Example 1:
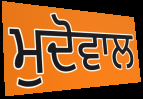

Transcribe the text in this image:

ਮੁਦੋਵਾਲ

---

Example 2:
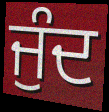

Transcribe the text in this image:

ਜੁੰਦ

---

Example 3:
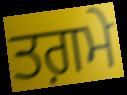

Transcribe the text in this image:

ਤਗ਼ਮੇ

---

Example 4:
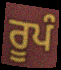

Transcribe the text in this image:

ਰੂਪੰ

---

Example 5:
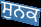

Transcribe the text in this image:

ਸੁਨਕ